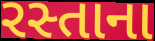
રસ્તાના